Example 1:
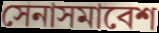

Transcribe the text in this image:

সেনাসমাবেশ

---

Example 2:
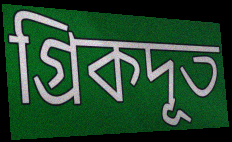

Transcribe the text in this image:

গ্রিকদূত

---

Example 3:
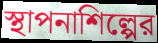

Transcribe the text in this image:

স্থাপনাশিল্পের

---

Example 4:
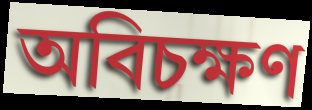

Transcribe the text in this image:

অবিচক্ষণ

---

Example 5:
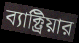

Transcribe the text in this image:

ব্যাক্ট্রিয়ার